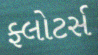
ફ્લોટર્સ